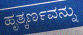
ಹೃತ್ಕರ್ಣವನ್ನು